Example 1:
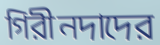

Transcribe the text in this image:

গিরীনদাদের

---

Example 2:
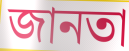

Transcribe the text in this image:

জানতা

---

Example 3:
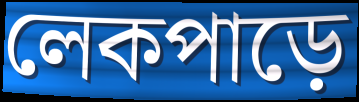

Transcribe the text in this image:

লেকপাড়ে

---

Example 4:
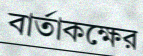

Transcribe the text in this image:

বার্তাকক্ষের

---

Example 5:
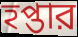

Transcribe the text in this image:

হপ্তার